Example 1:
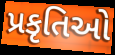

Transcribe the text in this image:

પ્રકૃતિઓ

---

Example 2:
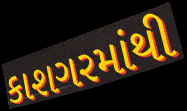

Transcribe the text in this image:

કાશગરમાંથી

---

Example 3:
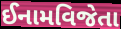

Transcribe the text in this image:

ઈનામવિજેતા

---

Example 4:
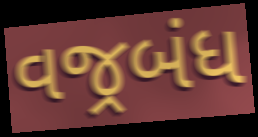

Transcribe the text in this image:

વજ્રબંધ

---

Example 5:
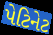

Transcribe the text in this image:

પેટિનેટ